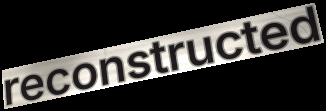
reconstructed